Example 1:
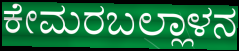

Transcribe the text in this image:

ಕೇಮರಬಲ್ಲಾಳನ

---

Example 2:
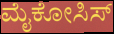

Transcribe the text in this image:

ಮೈಕೋಸಿಸ್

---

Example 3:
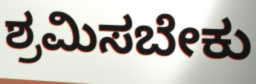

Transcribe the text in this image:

ಶ್ರಮಿಸಬೇಕು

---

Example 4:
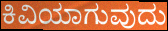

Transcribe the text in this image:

ಕಿವಿಯಾಗುವುದು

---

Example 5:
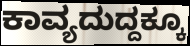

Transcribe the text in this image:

ಕಾವ್ಯದುದ್ದಕ್ಕೂ